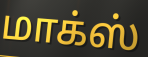
மாக்ஸ்